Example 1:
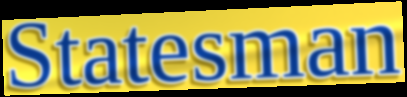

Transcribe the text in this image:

Statesman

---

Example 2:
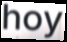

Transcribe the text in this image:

hoy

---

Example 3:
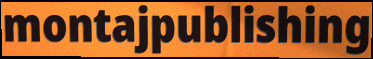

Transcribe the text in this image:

montajpublishing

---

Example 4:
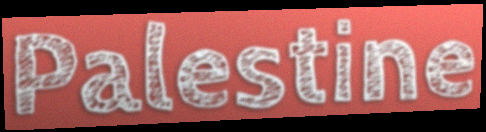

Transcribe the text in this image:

Palestine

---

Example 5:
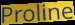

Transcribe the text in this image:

Proline